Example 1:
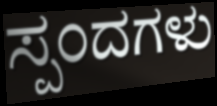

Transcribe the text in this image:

ಸ್ಪಂದಗಳು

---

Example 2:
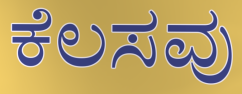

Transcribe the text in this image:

ಕೆಲಸವು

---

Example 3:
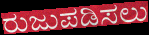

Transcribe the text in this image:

ರುಜುಪಡಿಸಲು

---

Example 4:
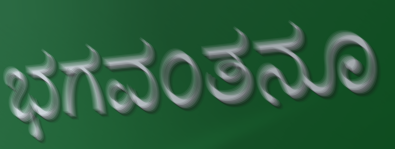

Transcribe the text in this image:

ಭಗವಂತನೂ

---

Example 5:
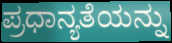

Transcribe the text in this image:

ಪ್ರಧಾನ್ಯತೆಯನ್ನು